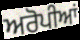
ਅਰੋਪੀਆਂ